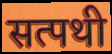
सत्पथी